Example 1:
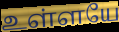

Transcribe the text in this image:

உள்ளயே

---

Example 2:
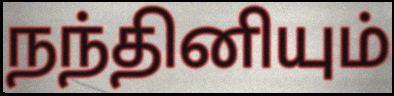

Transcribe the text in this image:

நந்தினியும்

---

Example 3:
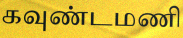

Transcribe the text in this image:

கவுண்டமணி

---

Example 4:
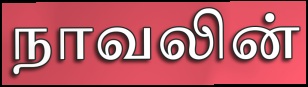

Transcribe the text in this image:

நாவலின்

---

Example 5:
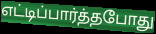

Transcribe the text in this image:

எட்டிப்பார்த்தபோது